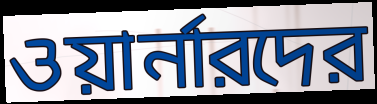
ওয়ার্নারদের